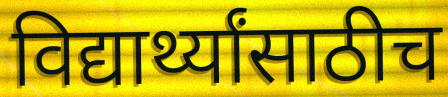
विद्यार्थ्यांसाठीच